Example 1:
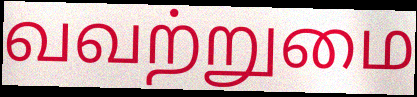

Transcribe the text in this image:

வவற்றுமை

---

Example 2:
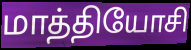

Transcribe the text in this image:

மாத்தியோசி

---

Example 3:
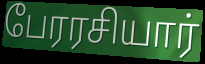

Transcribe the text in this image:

பேரரசியார்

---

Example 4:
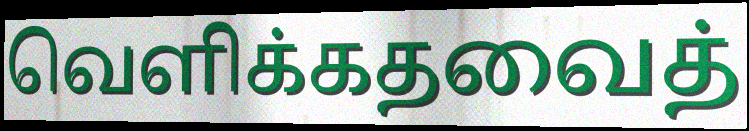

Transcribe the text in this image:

வெளிக்கதவைத்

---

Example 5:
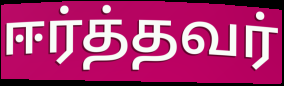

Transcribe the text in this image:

ஈர்த்தவர்